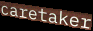
caretaker